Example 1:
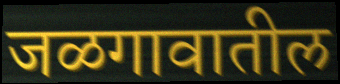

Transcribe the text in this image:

जळगावातील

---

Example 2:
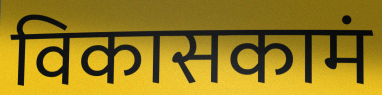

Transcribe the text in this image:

विकासकामं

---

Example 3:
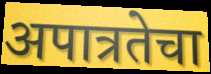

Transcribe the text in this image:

अपात्रतेचा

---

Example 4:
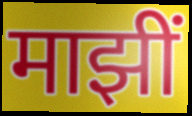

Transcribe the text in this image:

माझीं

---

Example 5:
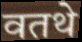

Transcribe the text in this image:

वतथे